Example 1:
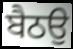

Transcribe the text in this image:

ਬੈਠਉ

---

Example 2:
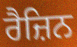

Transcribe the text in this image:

ਰੈਜ਼ਿਨ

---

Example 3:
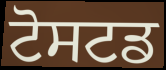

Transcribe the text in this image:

ਟੋਸਟਡ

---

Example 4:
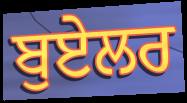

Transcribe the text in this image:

ਬੁਏਲਰ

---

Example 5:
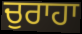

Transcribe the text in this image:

ਚੁਰਾਹਾ